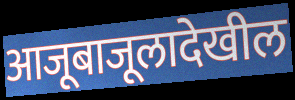
आजूबाजूलादेखील